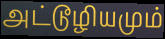
அட்டூழியமும்